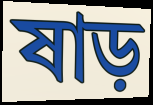
ষাড়